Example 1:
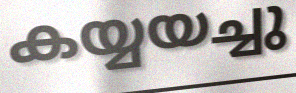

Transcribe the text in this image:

കയ്യയച്ചു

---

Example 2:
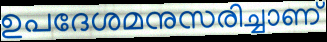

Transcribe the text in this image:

ഉപദേശമനുസരിച്ചാണ്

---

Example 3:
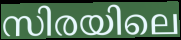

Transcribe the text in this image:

സിരയിലെ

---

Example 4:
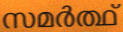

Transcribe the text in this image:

സമർത്ഥ്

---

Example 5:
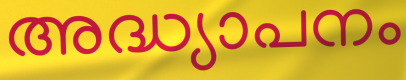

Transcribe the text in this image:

അദ്ധ്യാപനം